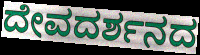
ದೇವದರ್ಶನದ